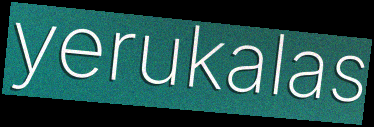
yerukalas